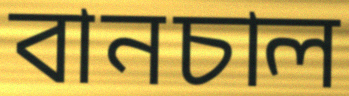
বানচাল